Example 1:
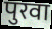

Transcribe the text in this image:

पुरवा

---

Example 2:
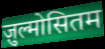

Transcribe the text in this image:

ज़ुल्मोसितम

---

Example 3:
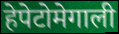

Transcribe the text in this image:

हेपेटोमेगाली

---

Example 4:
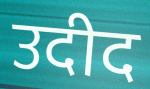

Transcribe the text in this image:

उदीद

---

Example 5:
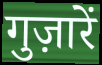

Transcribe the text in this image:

गुज़ारें